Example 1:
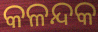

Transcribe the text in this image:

କଳନ୍ଦକ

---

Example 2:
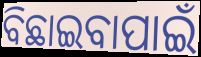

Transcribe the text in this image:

ବିଛାଇବାପାଇଁ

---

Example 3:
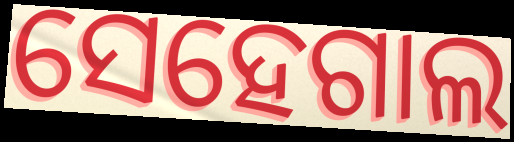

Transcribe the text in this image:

ସେହେଗାଲ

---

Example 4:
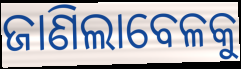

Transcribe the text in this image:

ଜାଣିଲାବେଳକୁ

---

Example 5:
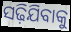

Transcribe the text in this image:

ସଢ଼ିଯିବାକୁ